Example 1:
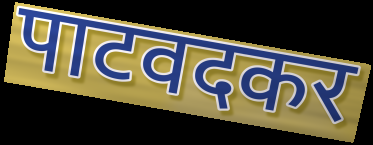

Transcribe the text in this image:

पाटवदकर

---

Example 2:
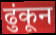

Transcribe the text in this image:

ढुंकून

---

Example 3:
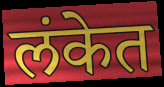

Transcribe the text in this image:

लंकेत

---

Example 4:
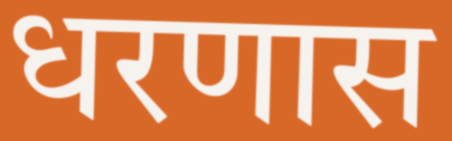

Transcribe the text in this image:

धरणास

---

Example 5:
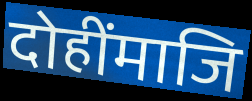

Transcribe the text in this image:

दोहींमाजि